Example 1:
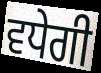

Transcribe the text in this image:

ਵਧੇਗੀ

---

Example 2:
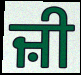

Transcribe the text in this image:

ਜ਼ੀ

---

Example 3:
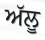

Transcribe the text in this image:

ਅੱਲੂ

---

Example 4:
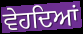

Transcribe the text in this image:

ਵੇਹਦਿਆਂ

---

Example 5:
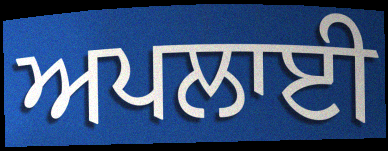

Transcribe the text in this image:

ਅਪਲਾਈ